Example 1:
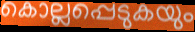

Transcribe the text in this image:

കൊല്ലപ്പെടുകയും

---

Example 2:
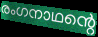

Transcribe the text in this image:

രംഗനാഥന്റെ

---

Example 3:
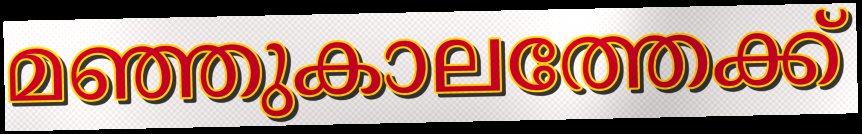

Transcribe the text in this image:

മഞ്ഞുകാലത്തേക്ക്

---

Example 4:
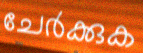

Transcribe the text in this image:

ചേർക്കുക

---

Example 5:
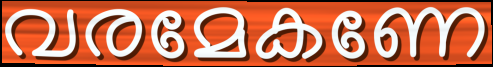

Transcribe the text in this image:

വരമേകണേ